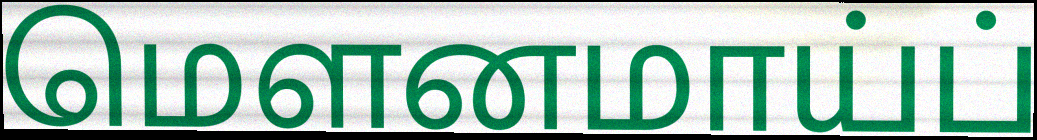
மௌனமாய்ப்